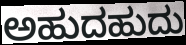
ಅಹುದಹುದು